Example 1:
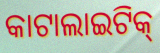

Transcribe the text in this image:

କାଟାଲାଇଟିକ୍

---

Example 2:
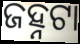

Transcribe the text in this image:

ଜହ୍ନଟା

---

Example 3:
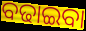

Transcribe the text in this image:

ବଢାଇବା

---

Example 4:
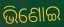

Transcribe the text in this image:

ଭିଣୋଇ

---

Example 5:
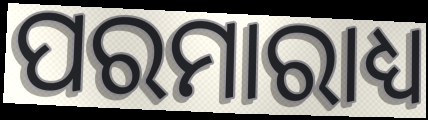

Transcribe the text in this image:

ପରମାରାଧ୍ୟ